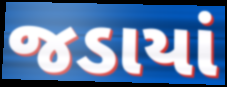
જડાયાં